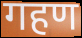
गहण